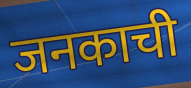
जनकाची